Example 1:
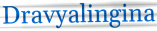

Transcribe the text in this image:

Dravyalingina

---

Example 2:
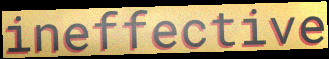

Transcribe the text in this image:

ineffective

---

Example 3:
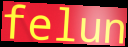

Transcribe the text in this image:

felun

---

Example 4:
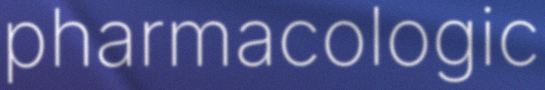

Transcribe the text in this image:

pharmacologic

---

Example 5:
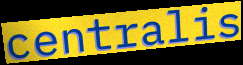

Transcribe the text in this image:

centralis